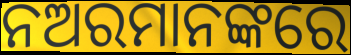
ନଅରମାନଙ୍କରେ